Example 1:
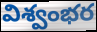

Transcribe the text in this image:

విశ్వంభర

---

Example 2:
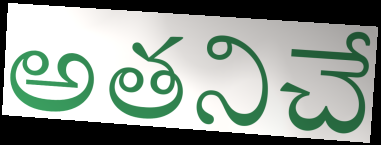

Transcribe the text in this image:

అతనిచే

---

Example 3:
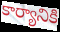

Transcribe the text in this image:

కార్యానికి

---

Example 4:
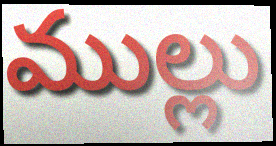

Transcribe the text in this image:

ముల్లు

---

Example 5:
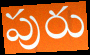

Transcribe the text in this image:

పురు